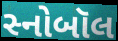
સ્નોબૉલ